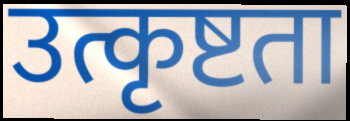
उत्कृष्टता